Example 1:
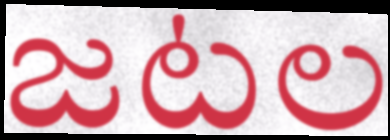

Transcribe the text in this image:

జటల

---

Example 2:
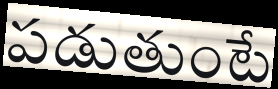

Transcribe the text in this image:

పడుతుంటే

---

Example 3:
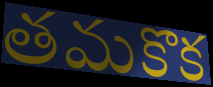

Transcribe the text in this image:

తమకొక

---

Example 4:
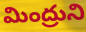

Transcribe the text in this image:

మింద్రుని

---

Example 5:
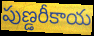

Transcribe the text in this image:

పుణ్డరీకాయ